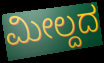
ಮೀಲ್ದದ